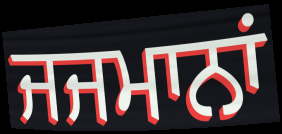
ਜਜਮਾਨਾਂ